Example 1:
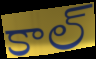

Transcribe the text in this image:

కాల్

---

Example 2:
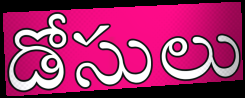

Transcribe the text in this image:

డోసులు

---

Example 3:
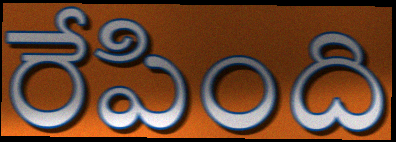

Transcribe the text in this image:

రేపింది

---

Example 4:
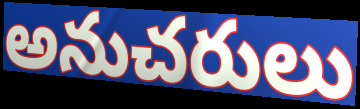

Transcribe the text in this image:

అనుచరులు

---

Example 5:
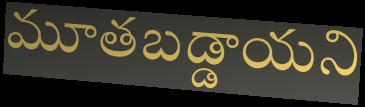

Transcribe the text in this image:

మూతబడ్డాయని